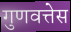
गुणवत्तेस